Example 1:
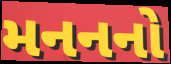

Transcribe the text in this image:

મનનનો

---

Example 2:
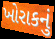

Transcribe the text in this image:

ખોરાકનું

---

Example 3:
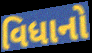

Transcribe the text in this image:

વિધાનો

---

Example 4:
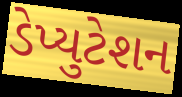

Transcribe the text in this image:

ડેપ્યુટેશન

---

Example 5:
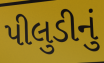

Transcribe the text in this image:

પીલુડીનું